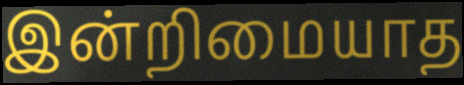
இன்றிமையாத